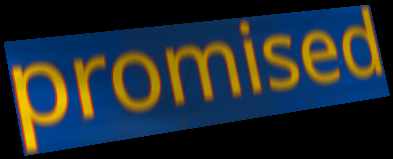
promised